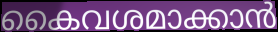
കൈവശമാക്കാൻ